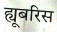
ह्यूबरिस